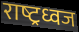
राष्ट्रध्वज